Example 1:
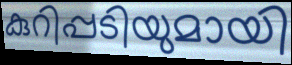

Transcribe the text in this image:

കുറിപ്പടിയുമായി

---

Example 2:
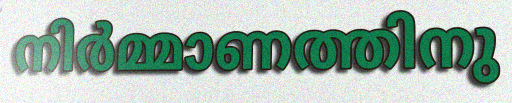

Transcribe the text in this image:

നിർമ്മാണത്തിനു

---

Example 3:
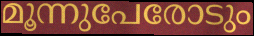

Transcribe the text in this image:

മൂന്നുപേരോടും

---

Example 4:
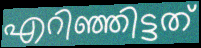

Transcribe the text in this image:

എറിഞ്ഞിട്ടത്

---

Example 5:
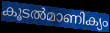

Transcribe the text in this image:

കൂടൽമാണിക്യം